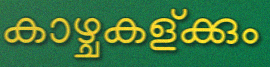
കാഴ്ചകള്ക്കും